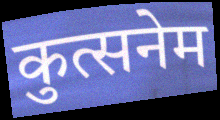
कुत्सनेम